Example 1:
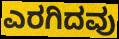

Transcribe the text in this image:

ಎರಗಿದವು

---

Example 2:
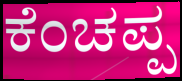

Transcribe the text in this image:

ಕೆಂಚಪ್ಪ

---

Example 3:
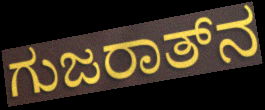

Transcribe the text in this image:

ಗುಜರಾತ್‍ನ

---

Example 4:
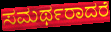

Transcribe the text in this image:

ಸಮರ್ಥರಾದರೆ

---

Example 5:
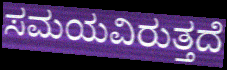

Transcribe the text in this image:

ಸಮಯವಿರುತ್ತದೆ